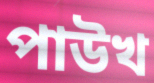
পাউখ